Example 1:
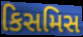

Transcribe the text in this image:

કિસમિસ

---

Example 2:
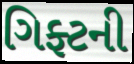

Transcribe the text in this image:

ગિફ્ટની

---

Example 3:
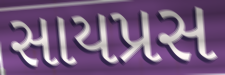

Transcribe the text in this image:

સાયપ્રસ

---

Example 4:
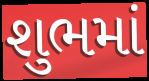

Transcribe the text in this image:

શુભમાં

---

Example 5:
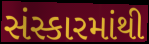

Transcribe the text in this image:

સંસ્કારમાંથી